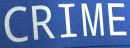
CRIME